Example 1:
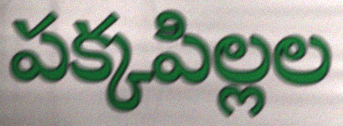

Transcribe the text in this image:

పక్కపిల్లల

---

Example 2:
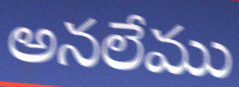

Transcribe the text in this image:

అనలేము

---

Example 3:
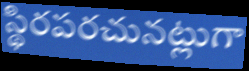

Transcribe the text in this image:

స్థిరపరచునట్లుగా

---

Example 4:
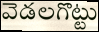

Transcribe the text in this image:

వెడలగొట్టు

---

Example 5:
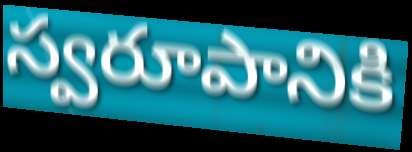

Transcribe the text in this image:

స్వరూపానికి